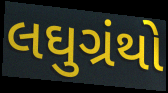
લઘુગ્રંથો